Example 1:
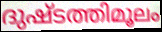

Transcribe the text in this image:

ദുഷ്ടത്തിമൂലം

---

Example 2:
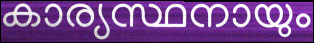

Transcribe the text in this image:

കാര്യസ്ഥനായും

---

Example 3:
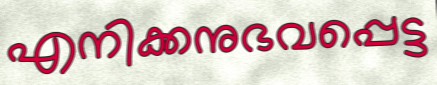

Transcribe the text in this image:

എനിക്കനുഭവപ്പെട്ട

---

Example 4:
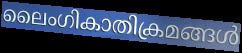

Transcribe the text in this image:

ലൈംഗികാതിക്രമങ്ങൾ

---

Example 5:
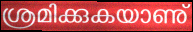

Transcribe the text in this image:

ശ്രമിക്കുകയാണു്